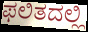
ಫಲಿತದಲ್ಲಿ